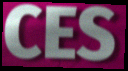
CES